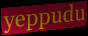
yeppudu